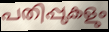
പതിപ്പുകളും